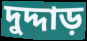
দুদ্দাড়